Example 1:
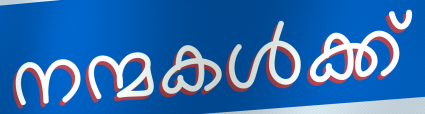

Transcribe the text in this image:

നന്മകൾക്ക്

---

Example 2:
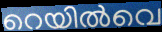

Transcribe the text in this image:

റെയിൽവെ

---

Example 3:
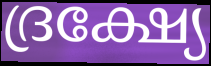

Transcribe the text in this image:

ദ്രക്ഷ്യേ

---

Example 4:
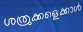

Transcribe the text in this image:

ശത്രുക്കളെക്കാൾ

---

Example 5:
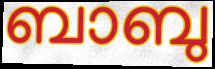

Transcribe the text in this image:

ബാബു